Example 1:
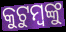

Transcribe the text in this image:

କୁଟୁମ୍ବଙ୍କୁ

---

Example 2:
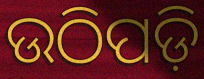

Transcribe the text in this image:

ଉଠିପଡ଼ି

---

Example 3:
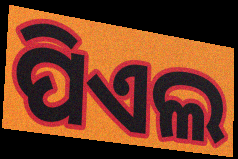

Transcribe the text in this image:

ପିଏଲ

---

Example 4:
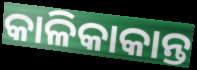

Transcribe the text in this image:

କାଳିକାକାନ୍ତ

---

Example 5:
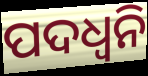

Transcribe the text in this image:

ପଦଧ୍ୱନି